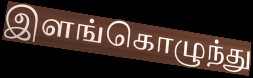
இளங்கொழுந்து